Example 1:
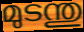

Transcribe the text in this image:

മുടന്തു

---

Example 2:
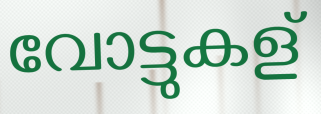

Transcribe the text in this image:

വോട്ടുകള്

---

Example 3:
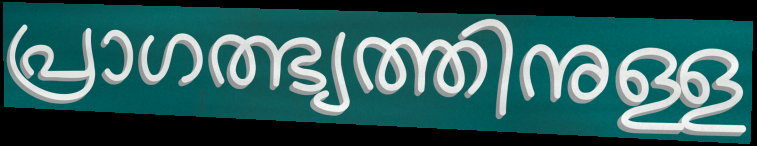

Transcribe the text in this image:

പ്രാഗത്ഭ്യത്തിനുള്ള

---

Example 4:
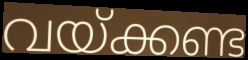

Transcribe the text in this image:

വയ്ക്കണ്ട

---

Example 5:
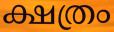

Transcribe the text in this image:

ക്ഷത്രം